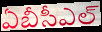
ఏబీసీఎల్